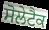
ਸੋਲੇਟੈਕ